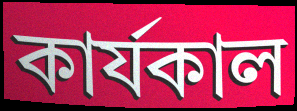
কাৰ্যকাল